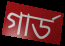
গাৰ্ড